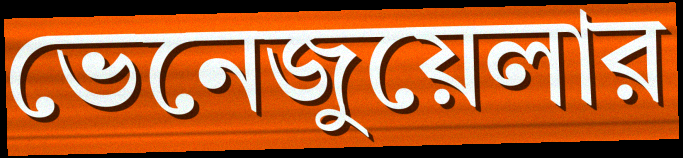
ভেনেজুয়েলার